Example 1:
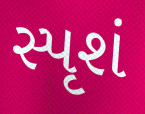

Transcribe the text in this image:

સ્પૃશં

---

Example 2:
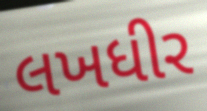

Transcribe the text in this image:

લખધીર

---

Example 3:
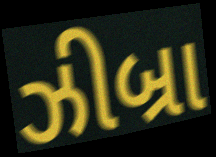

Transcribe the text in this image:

ઝીબ્રા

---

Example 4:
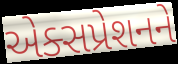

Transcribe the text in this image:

એક્સપ્રેશનને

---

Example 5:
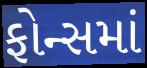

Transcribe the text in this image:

ફોન્સમાં